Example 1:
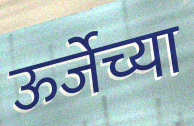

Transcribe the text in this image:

ऊर्जेच्या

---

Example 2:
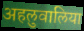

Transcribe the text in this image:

अहलुवालिया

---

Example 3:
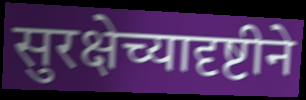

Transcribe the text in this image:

सुरक्षेच्यादृष्टीने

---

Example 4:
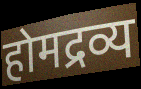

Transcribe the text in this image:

होमद्रव्य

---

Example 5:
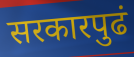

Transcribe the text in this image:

सरकारपुढं